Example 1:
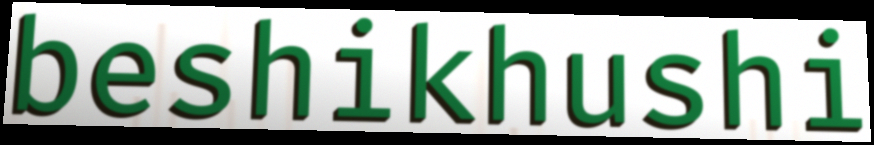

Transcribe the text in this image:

beshikhushi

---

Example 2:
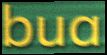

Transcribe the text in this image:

bua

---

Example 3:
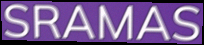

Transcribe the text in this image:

SRAMAS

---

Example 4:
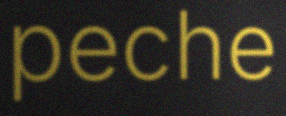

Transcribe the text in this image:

peche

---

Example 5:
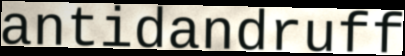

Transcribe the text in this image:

antidandruff